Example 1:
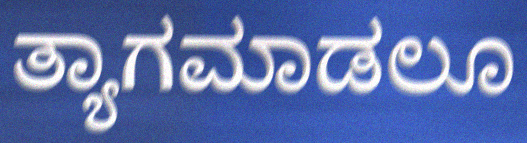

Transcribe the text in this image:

ತ್ಯಾಗಮಾಡಲೂ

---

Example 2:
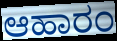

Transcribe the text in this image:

ಆಹಾರಂ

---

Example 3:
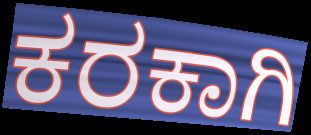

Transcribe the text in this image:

ಕರಕಾಗಿ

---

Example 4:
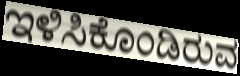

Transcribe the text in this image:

ಇಳಿಸಿಕೊಂಡಿರುವ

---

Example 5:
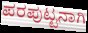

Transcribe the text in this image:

ಪರಪುಟ್ಟನಾಗಿ